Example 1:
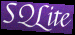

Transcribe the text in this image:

SQLite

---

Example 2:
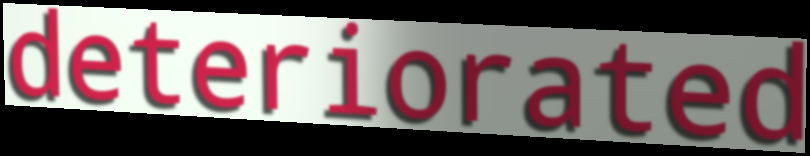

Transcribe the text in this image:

deteriorated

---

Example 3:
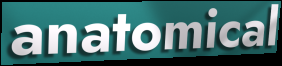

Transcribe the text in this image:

anatomical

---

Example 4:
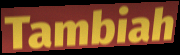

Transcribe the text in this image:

Tambiah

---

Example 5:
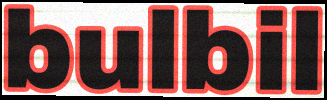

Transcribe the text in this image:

bulbil